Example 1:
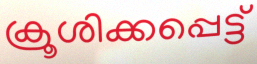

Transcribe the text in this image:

ക്രൂശിക്കപ്പെട്ട്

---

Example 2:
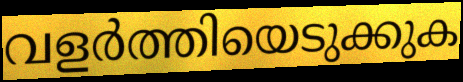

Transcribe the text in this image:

വളർത്തിയെടുക്കുക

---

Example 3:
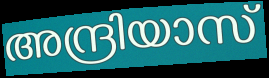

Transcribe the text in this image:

അന്ദ്രിയാസ്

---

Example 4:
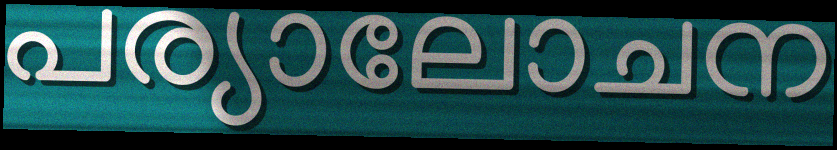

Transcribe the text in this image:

പര്യാലോചന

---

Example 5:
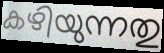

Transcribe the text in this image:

കഴിയുന്നതു